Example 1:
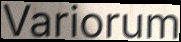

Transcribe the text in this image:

Variorum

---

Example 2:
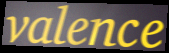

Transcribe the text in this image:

valence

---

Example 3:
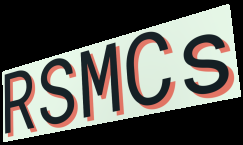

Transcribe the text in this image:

RSMCs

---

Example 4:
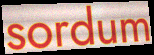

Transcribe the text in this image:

sordum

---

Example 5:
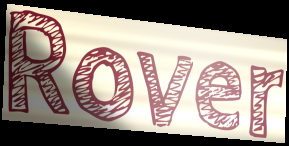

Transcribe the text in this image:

Rover